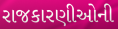
રાજકારણીઓની